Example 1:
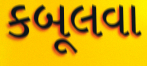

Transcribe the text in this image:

કબૂલવા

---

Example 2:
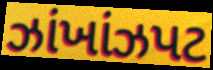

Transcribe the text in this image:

ઝાંખાંઝપટ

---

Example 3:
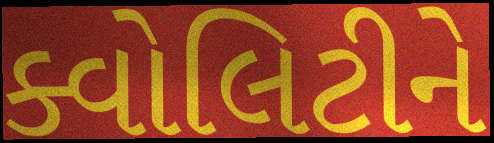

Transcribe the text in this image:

ક્વોલિટીને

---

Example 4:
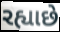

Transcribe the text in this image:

રહ્યાછે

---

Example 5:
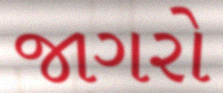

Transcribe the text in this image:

જાગરો